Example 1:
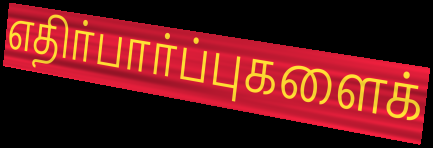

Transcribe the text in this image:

எதிர்பார்ப்புகளைக்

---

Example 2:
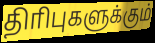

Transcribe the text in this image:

திரிபுகளுக்கும்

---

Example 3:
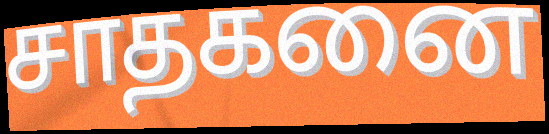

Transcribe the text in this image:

சாதகனை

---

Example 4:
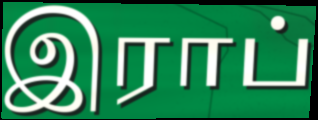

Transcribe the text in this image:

இராப்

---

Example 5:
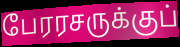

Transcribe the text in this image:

பேரரசருக்குப்